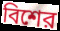
বিশের